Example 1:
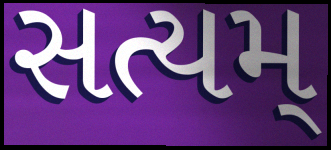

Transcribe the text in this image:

સત્યમ્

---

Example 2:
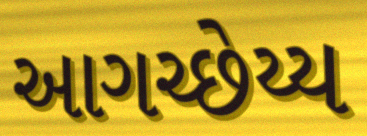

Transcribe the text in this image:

આગચ્છેય્ય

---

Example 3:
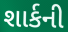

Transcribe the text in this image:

શાર્કની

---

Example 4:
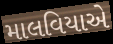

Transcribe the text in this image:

માલવિયાએ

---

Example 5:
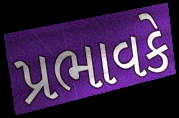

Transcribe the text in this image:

પ્રભાવકે